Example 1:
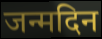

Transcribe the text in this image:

जन्‍मदिन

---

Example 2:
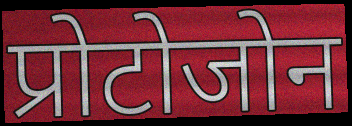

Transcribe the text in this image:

प्रोटोजोन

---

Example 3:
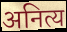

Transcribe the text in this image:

अनित्य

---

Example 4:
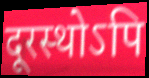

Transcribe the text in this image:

दूरस्थोऽपि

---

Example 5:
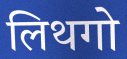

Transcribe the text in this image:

लिथगो